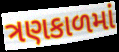
ત્રણકાળમાં